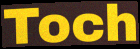
Toch